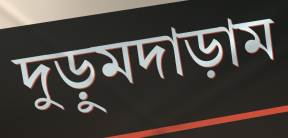
দুড়ুমদাড়াম